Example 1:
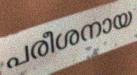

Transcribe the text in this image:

പരീശനായ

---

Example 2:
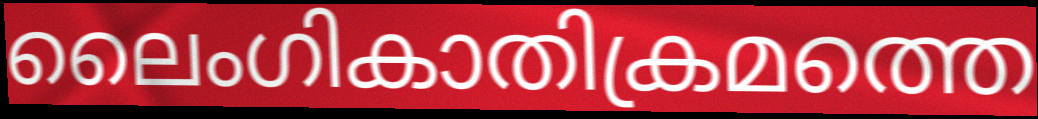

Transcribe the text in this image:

ലൈംഗികാതിക്രമത്തെ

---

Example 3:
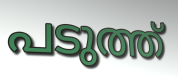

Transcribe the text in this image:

പടുത്ത്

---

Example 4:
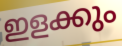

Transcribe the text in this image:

ഇളക്കും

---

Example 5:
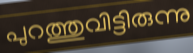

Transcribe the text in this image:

പുറത്തുവിട്ടിരുന്നു